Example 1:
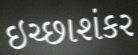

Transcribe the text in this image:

ઇચ્છાશંકર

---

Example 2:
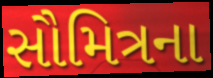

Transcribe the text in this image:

સૌમિત્રના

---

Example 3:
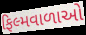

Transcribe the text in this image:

ફિલ્મવાળાઓ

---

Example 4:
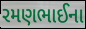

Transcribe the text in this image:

રમણભાઈના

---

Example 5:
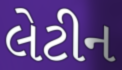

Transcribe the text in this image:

લેટીન